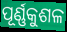
ପୂର୍ଣ୍ଣକୁଶଳ